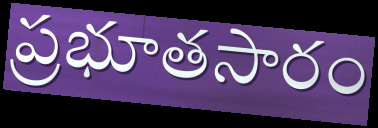
ప్రభూతసారం